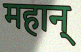
महान्